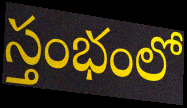
స్తంభంలో